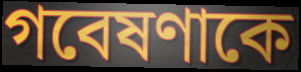
গবেষণাকে